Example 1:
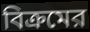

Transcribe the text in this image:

বিক্রমের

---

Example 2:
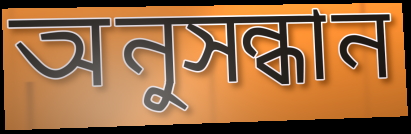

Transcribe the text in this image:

অনুসন্ধান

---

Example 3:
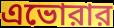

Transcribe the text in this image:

এভোরার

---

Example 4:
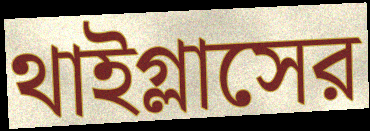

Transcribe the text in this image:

থাইগ্লাসের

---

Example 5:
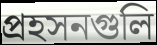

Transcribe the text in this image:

প্রহসনগুলি